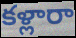
కళ్లారా